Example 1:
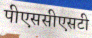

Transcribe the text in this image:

पीएससीएसटी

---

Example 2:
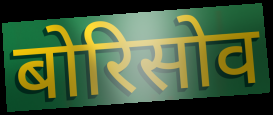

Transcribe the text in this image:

बोरिसोव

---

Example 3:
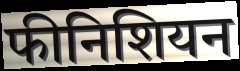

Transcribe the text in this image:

फीनिशियन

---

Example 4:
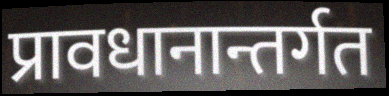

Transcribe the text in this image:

प्रावधानान्तर्गत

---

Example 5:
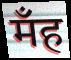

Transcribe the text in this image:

मँह